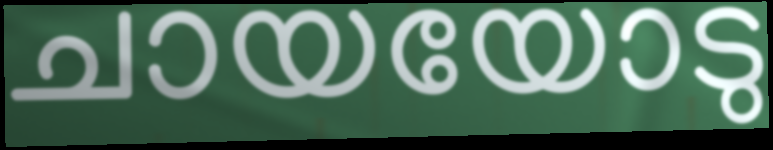
ചായയോടു